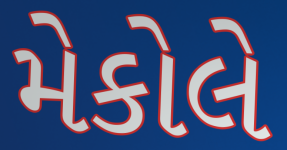
મેકોલે